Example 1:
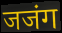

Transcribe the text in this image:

जजंग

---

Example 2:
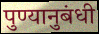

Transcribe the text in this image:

पुण्यानुबंधी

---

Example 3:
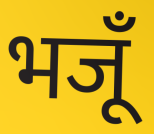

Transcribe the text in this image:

भजूँ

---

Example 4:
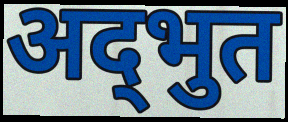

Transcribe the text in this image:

अद्‌भुत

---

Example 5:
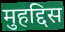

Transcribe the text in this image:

मुहद्दिस